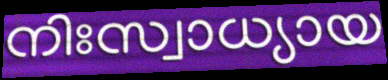
നിഃസ്വാധ്യായ